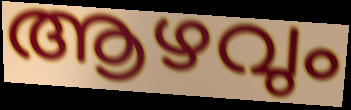
ആഴവും